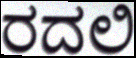
ರದಲಿ